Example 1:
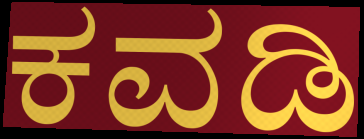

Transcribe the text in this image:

ಕವಡಿ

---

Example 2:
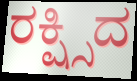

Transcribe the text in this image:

ರಕ್ಷ್ಸಿದ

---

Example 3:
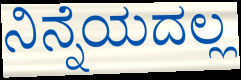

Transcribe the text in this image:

ನಿನ್ನೆಯದಲ್ಲ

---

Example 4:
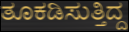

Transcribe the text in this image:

ತೂಕಡಿಸುತ್ತಿದ್ದ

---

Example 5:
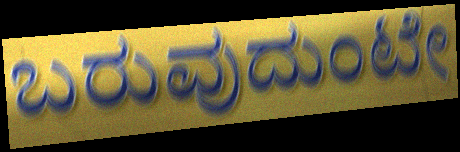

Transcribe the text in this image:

ಬರುವುದುಂಟೇ